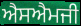
ਐਸਐਮਜੀ